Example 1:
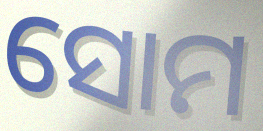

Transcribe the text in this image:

ସୋମ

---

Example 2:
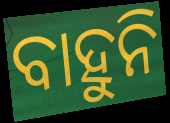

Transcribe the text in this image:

ବାହୁନି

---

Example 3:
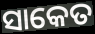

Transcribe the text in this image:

ସାକେତ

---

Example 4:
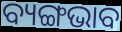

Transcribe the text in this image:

ବ୍ୟଙ୍ଗଭାବ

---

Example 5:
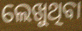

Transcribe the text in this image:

ଲେଖୁଥିବା